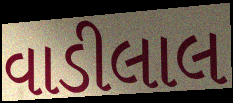
વાડીલાલ